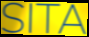
SITA